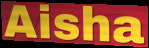
Aisha